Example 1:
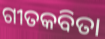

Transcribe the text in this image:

ଗୀତକବିତା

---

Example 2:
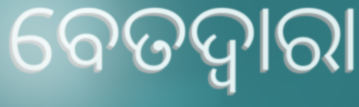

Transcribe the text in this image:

ବେତଦ୍ୱାରା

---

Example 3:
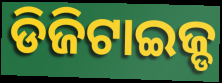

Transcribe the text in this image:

ଡିଜିଟାଇଜ୍ଡ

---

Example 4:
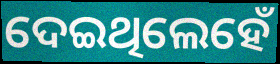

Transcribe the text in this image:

ଦେଇଥିଲେହେଁ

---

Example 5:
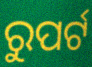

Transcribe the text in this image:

ରୁପର୍ଟ